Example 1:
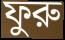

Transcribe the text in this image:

ফুরু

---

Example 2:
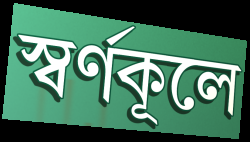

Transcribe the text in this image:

স্বর্ণকূলে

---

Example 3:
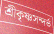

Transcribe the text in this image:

শ্রীকৃষ্ণসন্দর্ভ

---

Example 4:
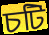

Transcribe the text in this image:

চটি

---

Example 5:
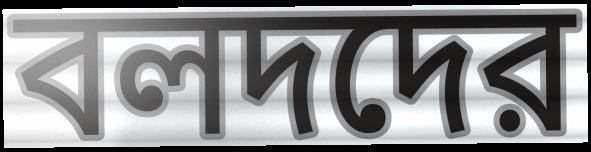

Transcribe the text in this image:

বলদদের